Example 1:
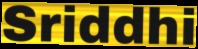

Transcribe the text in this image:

Sriddhi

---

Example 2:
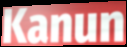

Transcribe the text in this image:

Kanun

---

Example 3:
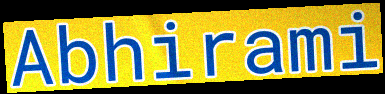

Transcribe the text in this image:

Abhirami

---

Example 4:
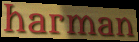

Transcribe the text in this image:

harman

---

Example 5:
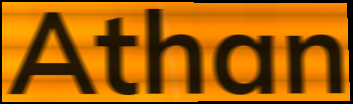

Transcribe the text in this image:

Athan